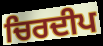
ਚਿਰਦੀਪ